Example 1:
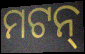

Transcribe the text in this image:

ମଟନ୍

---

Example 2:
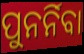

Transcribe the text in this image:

ପୁନର୍ନିବା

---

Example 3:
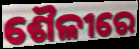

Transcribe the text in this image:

ଶୈଳୀରେ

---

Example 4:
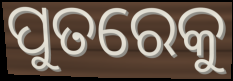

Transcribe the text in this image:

ପୁତରେକୁ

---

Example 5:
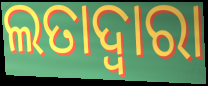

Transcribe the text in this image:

ଲତାଦ୍ୱାରା